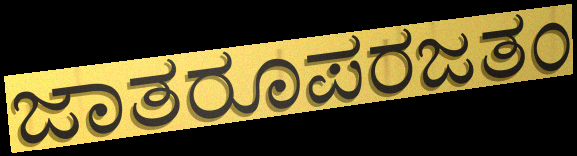
ಜಾತರೂಪರಜತಂ